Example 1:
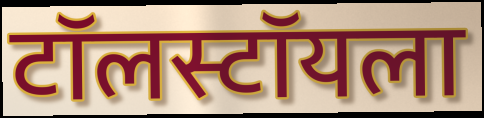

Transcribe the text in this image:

टॉलस्टॉयला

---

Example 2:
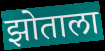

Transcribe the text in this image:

झोताला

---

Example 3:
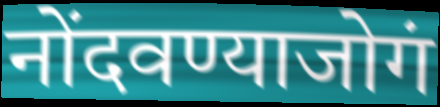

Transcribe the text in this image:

नोंदवण्याजोगं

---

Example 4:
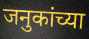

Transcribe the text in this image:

जनुकांच्या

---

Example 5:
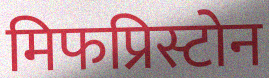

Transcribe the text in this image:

मिफप्रिस्टोन